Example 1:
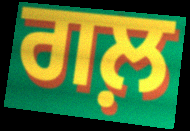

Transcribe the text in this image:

ਗਲ਼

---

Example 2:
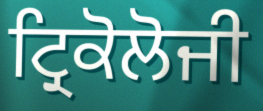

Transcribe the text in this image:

ਟ੍ਰਿਕੋਲੋਜੀ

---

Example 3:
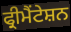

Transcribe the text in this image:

ਫ੍ਰੀਮੈਂਟੇਸ਼ਨ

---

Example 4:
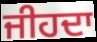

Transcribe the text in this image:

ਜੀਹਦਾ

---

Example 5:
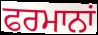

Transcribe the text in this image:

ਫਰਮਾਨਾਂ